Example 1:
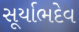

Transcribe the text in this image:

સૂર્યાભદેવ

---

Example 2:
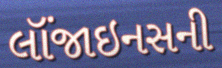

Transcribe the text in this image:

લૉંજાઇનસની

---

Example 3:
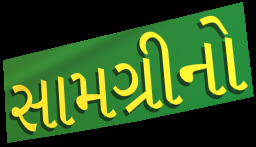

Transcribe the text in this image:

સામગ્રીનો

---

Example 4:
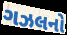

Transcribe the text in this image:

ગઝલનો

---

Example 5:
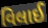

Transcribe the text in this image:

વિલાઈ